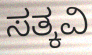
ಸತ್ಕವಿ